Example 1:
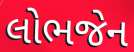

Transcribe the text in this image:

લોભજેન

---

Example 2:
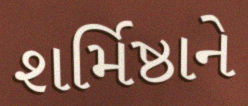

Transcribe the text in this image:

શર્મિષ્ઠાને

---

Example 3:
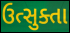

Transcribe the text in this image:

ઉત્સુક્તા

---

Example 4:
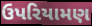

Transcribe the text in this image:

ઉપરિયામણ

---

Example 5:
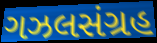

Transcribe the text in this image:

ગઝલસંગ્રહ